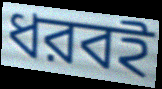
ধরবই